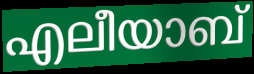
എലീയാബ്